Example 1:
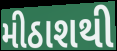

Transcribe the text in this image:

મીઠાશથી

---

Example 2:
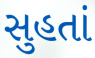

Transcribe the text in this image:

સુહતાં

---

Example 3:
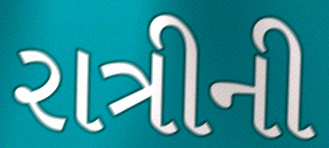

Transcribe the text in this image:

રાત્રીની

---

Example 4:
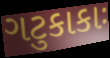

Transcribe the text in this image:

ગટુકાકાઃ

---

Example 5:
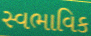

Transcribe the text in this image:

સ્વભાવિક